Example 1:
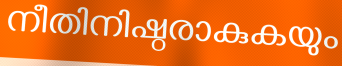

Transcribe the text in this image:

നീതിനിഷ്ഠരാകുകയും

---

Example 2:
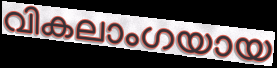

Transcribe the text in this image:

വികലാംഗയായ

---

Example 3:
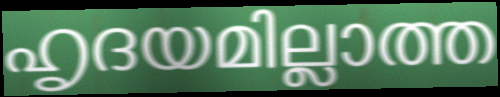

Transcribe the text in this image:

ഹൃദയമില്ലാത്ത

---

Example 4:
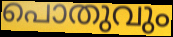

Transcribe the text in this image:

പൊതുവും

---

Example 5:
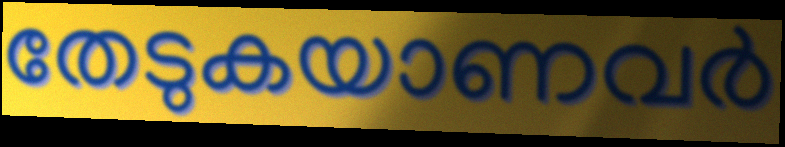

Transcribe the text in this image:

തേടുകയാണവർ